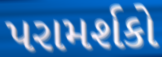
પરામર્શકો